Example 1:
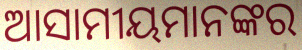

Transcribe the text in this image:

ଆସାମୀୟମାନଙ୍କର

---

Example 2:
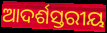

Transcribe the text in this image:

ଆଦର୍ଶସ୍ତରୀୟ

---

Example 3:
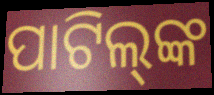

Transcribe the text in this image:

ପାଟିଲ୍‌ଙ୍କ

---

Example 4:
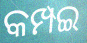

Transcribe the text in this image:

କମ୍ପଇ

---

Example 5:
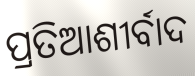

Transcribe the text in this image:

ପ୍ରତିଆଶୀର୍ବାଦ